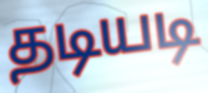
தடியடி